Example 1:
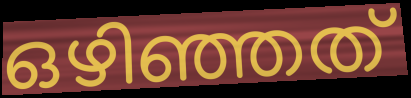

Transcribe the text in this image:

ഒഴിഞ്ഞത്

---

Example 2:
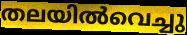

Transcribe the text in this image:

തലയിൽവെച്ചു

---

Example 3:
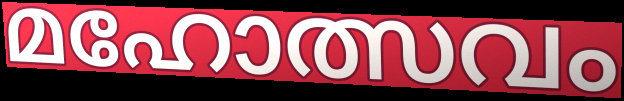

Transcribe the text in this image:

മഹോത്സവം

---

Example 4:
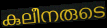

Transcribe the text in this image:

കുലീനരുടെ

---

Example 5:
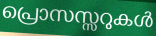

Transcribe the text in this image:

പ്രൊസസ്സറുകൾ